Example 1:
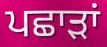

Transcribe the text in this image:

ਪਛਾੜਾਂ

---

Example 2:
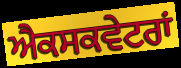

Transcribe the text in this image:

ਐਕਸਕਵੇਟਰਾਂ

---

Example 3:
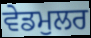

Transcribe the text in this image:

ਵੇਡਮੁਲਰ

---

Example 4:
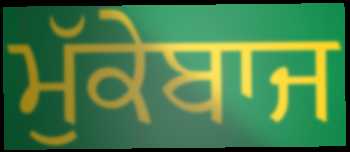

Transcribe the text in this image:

ਮੁੱਕੇਬਾਜ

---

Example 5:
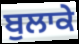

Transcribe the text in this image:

ਬੁਲਾਕੇ